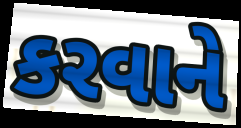
કરવાને